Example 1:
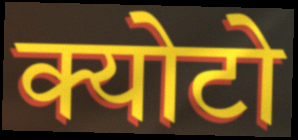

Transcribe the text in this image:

क्‍योटो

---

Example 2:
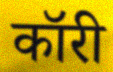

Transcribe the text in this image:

कॉरी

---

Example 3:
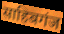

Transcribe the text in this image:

साहिबगंज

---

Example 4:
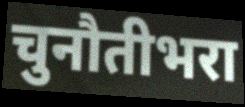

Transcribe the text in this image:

चुनौतीभरा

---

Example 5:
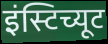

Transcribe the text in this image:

इंस्टिच्यूट